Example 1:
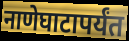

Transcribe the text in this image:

नाणेघाटापर्यंत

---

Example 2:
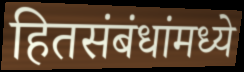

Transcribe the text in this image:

हितसंबंधांमध्ये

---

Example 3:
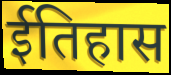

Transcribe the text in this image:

ईतिहास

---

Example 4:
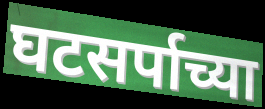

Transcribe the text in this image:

घटसर्पाच्या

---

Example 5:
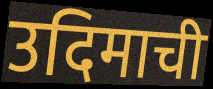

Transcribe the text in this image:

उदिमाची